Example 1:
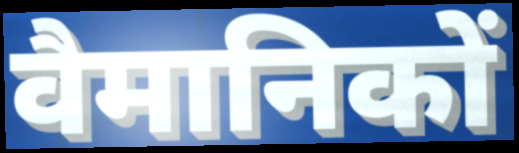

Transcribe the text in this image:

वैमानिकों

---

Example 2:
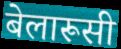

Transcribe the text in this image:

बेलारूसी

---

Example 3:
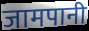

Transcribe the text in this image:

जामपानी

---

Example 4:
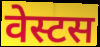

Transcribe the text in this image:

वेस्टस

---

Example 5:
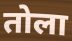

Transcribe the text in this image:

तोला